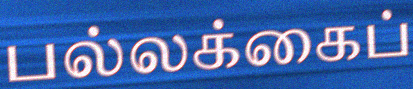
பல்லக்கைப்